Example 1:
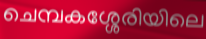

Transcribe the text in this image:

ചെമ്പകശ്ശേരിയിലെ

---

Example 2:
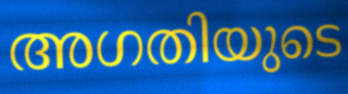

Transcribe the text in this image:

അഗതിയുടെ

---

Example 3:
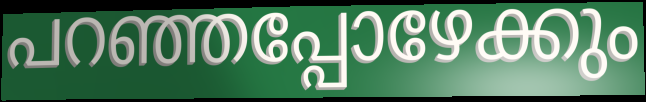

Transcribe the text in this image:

പറഞ്ഞപ്പോഴേക്കും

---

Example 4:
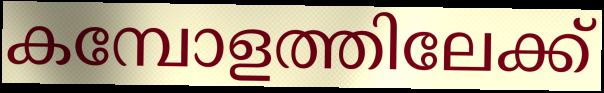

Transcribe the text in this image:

കമ്പോളത്തിലേക്ക്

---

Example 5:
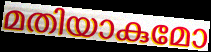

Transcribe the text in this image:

മതിയാകുമോ